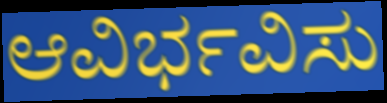
ಆವಿರ್ಭವಿಸು